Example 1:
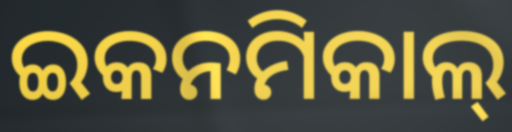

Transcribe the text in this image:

ଇକନମିକାଲ୍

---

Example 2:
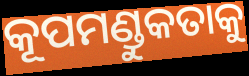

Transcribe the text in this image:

କୂପମଣ୍ଡୁକତାକୁ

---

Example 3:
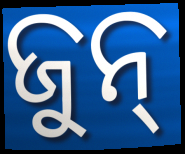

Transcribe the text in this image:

ଜୁନ୍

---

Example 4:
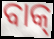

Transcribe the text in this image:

ବାକ୍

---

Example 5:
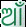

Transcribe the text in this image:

ଆଁ